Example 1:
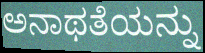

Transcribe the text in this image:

ಅನಾಥತೆಯನ್ನು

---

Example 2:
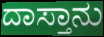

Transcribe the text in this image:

ದಾಸ್ತಾನು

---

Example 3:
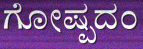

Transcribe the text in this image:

ಗೋಷ್ಪದಂ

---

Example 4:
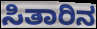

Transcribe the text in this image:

ಸಿತಾರಿನ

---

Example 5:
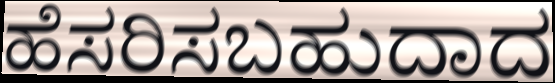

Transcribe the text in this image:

ಹೆಸರಿಸಬಹುದಾದ